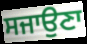
ਸਜਾਉਣਾ